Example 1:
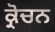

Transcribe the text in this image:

ਕ੍ਰੋਚਨ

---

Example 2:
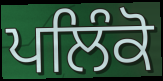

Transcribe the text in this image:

ਪਲਿੰਕੋ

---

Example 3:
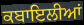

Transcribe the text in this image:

ਕਬਾਇਲੀਆਂ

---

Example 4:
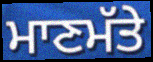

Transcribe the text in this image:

ਮਾਣਮੱਤੇ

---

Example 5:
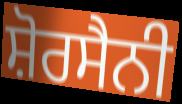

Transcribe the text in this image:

ਸ਼ੋਰਸੈਨੀ